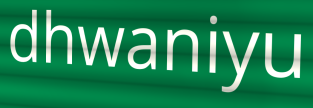
dhwaniyu